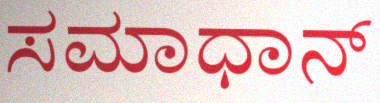
ಸಮಾಧಾನ್